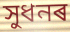
সুধনৰ